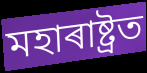
মহাৰাষ্ট্ৰত